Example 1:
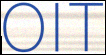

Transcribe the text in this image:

OIT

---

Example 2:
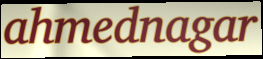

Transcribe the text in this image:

ahmednagar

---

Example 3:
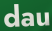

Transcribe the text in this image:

dau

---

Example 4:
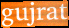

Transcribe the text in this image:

gujrat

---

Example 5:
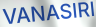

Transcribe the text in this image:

VANASIRI